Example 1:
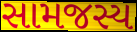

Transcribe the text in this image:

સામજસ્ય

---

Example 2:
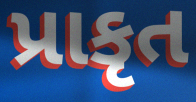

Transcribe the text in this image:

પ્રાકૃત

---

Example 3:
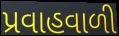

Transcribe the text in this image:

પ્રવાહવાળી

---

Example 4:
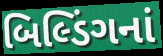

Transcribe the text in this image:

બિલ્ડિંગનાં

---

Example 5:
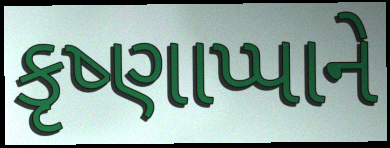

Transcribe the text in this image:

કૃષ્ણાપ્પાને